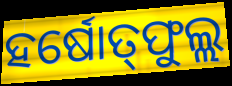
ହର୍ଷୋତ୍‌ଫୁଲ୍ଲ